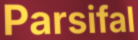
Parsifal